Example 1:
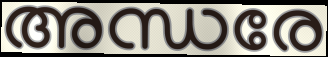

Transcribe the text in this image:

അന്ധരേ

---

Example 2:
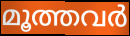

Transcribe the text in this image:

മൂത്തവർ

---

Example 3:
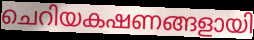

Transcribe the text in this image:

ചെറിയകഷണങ്ങളായി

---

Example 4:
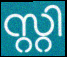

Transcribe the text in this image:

സ്റ്റി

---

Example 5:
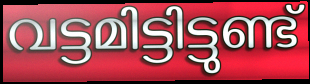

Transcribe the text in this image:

വട്ടമിട്ടിട്ടുണ്ട്